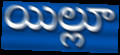
యిల్లూ